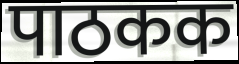
पाठकक